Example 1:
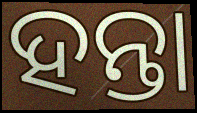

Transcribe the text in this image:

ହନ୍ତା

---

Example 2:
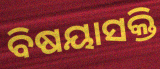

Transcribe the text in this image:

ବିଷୟାସକ୍ତି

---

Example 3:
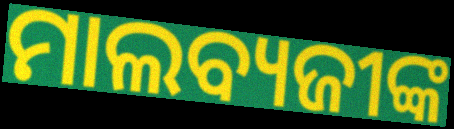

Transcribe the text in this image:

ମାଲବ୍ୟଜୀଙ୍କ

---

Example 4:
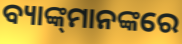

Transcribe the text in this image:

ବ୍ୟାଙ୍କ୍‌ମାନଙ୍କରେ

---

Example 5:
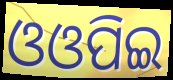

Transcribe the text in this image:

ଓଓପିଇ